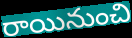
రాయినుంచి